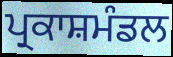
ਪ੍ਰਕਾਸ਼ਮੰਡਲ